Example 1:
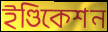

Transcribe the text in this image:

ইণ্ডিকেশন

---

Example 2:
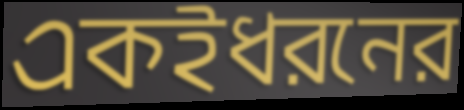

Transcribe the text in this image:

একইধরনের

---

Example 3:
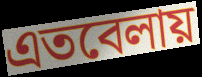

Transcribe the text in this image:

এতবেলায়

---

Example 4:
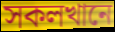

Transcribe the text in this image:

সকলখানে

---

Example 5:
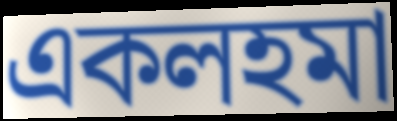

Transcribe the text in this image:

একলহমা